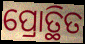
ପ୍ରୋତ୍ଥିତ